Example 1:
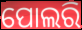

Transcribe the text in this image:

ପୋଲରି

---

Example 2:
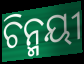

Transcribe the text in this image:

ଚିନ୍ମୟୀ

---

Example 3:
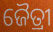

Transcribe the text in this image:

ଜୈତ୍ରୀ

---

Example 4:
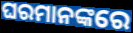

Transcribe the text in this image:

ଘରମାନଙ୍କରେ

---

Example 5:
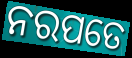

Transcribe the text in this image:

ନରପତେ